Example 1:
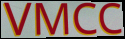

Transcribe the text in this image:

VMCC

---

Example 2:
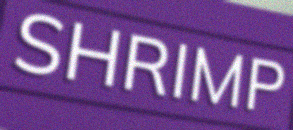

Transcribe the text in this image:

SHRIMP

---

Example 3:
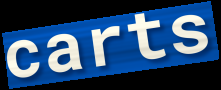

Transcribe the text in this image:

carts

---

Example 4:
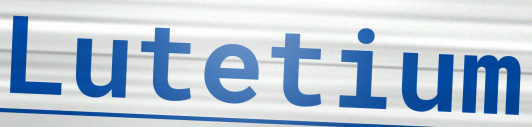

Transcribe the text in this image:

Lutetium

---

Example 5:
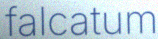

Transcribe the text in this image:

falcatum